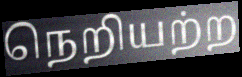
நெறியற்ற